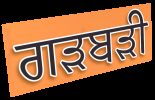
ਗੜਬੜੀ